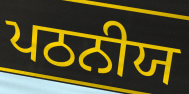
ਪਠਨੀਯ